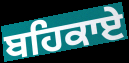
ਬਹਿਕਾਏ